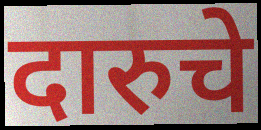
दारुचे